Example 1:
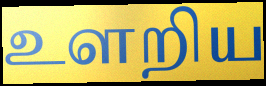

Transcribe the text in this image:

உளறிய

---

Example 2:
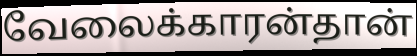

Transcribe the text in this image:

வேலைக்காரன்தான்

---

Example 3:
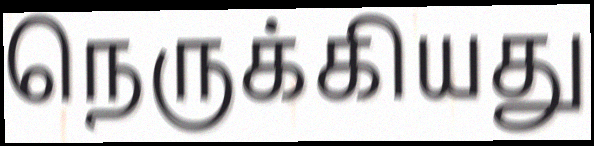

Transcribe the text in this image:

நெருக்கியது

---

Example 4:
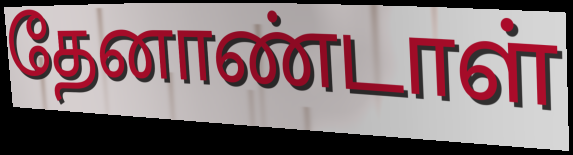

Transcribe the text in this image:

தேனாண்டாள்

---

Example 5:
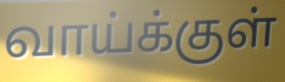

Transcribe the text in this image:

வாய்க்குள்